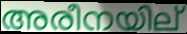
അരീനയില്